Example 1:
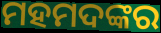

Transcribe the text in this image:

ମହମଦଙ୍କର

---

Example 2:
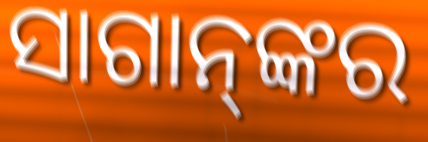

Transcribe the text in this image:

ସାଗାନ୍‌ଙ୍କର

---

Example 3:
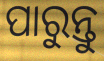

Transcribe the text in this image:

ପାରୁନ୍ତୁ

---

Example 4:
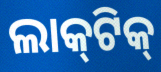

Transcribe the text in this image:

ଲାକ୍‌ଟିକ୍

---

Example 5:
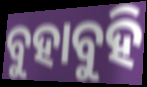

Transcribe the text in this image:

ବୁହାବୁହି